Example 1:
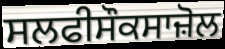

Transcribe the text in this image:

ਸਲਫੀਸੌਕਸਾਜ਼ੋਲ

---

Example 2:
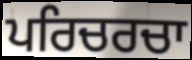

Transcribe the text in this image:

ਪਰਿਚਰਚਾ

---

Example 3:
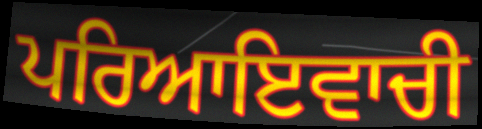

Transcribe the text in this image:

ਪਰਿਆਇਵਾਚੀ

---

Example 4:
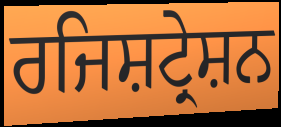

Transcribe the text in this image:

ਰਜਿਸ਼ਟ੍ਰੇਸ਼ਨ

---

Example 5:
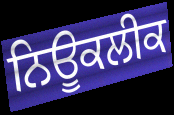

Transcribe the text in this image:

ਨਿਊਕਲੀਕ